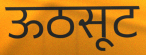
ऊठसूट